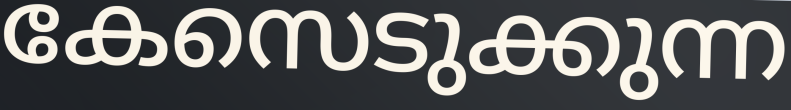
കേസെടുക്കുന്ന